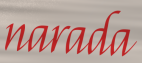
narada